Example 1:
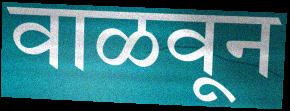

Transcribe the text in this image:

वाळवून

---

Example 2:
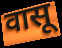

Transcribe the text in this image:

वासू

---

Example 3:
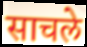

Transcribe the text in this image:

साचले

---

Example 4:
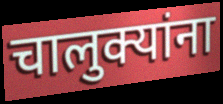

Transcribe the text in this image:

चालुक्यांना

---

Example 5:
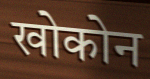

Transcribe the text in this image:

खोकोन